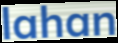
lahan